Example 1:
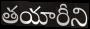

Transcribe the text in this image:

తయారీని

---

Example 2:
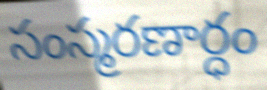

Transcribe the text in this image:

సంస్మరణార్ధం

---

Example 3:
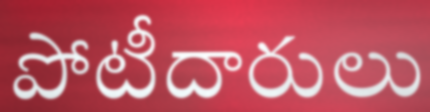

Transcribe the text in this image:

పోటీదారులు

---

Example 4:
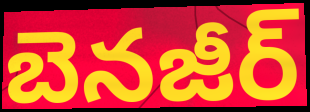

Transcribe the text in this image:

బెనజీర్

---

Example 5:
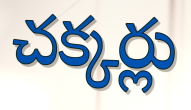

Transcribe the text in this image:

చక్కర్లు